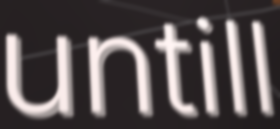
untill